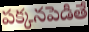
పక్కనపెడితే